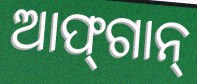
ଆଫ୍‌ଗାନ୍